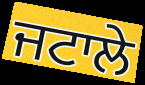
ਜਟਾਲੇ